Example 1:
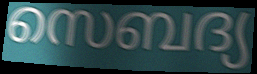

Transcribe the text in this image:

സെബദ്യ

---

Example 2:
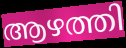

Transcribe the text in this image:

ആഴത്തി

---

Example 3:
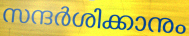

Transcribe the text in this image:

സന്ദർശിക്കാനും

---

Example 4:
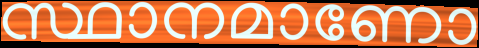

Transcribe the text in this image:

സ്ഥാനമാണോ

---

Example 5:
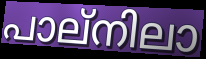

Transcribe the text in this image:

പാല്നിലാ